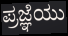
ಪ್ರಜ್ಞೆಯು